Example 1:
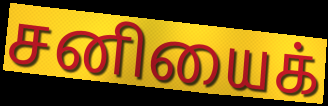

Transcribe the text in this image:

சனியைக்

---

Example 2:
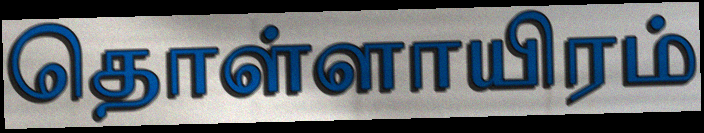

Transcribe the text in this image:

தொள்ளாயிரம்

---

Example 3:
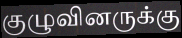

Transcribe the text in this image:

குழுவினருக்கு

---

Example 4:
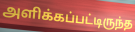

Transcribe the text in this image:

அளிக்கப்பட்டிருந்த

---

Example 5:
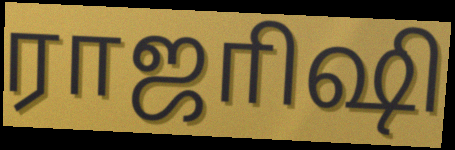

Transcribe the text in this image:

ராஜரிஷி